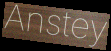
Anstey